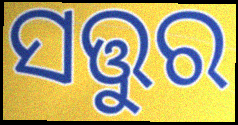
ସତ୍ତୁର